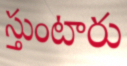
స్తుంటారు